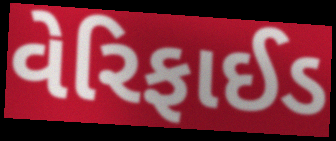
વેરિફાઈડ